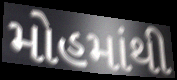
મોહમાંથી